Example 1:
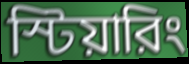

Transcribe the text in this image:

স্টিয়ারিং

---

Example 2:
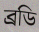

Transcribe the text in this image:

ব্রডি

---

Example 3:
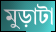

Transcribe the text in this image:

মুড়াটা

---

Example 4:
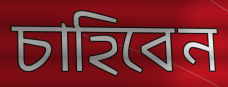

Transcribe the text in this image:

চাহিবেন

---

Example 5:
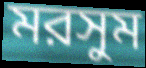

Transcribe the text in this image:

মরসুম